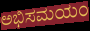
ಅಭಿಸಮಯಂ